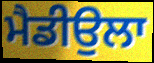
ਮੈਡੀਉਲਾ